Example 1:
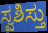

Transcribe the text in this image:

ಸ್ವಶಿಸ್ತು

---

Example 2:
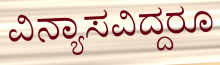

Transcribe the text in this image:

ವಿನ್ಯಾಸವಿದ್ದರೂ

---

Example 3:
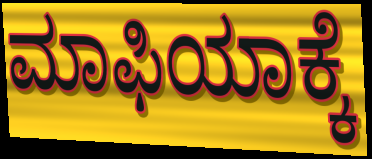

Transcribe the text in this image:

ಮಾಫಿಯಾಕ್ಕೆ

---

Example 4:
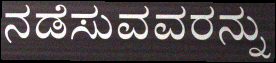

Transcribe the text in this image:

ನಡೆಸುವವರನ್ನು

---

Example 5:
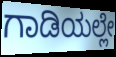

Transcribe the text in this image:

ಗಾಡಿಯಲ್ಲೇ